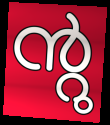
ന്റു